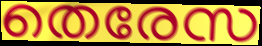
തെരേസ